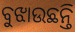
ବୁଝାଉଛନ୍ତି